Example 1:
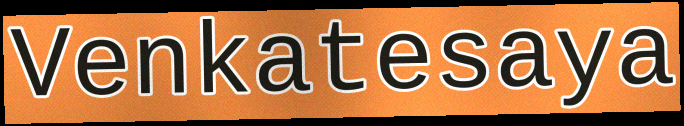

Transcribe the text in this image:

Venkatesaya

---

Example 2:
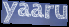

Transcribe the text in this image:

yaaru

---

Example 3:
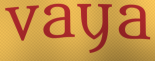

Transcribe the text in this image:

vaya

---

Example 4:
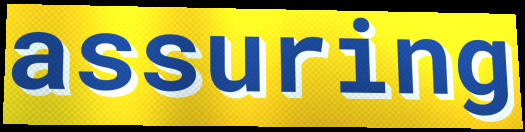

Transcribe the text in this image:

assuring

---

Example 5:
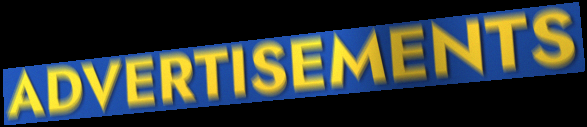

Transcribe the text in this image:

ADVERTISEMENTS